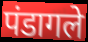
पंडागले